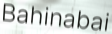
Bahinabai